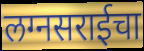
लग्नसराईचा